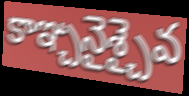
కాఞ్చనైశ్చైవ